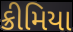
ક્રીમિયા